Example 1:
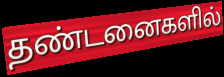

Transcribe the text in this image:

தண்டனைகளில்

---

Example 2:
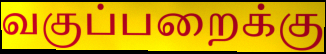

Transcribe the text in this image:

வகுப்பறைக்கு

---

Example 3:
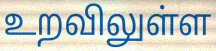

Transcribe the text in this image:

உறவிலுள்ள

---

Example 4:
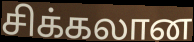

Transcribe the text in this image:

சிக்கலான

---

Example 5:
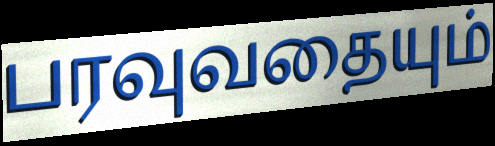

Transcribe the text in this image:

பரவுவதையும்